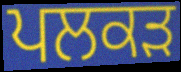
ਪਲਕੜ